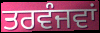
ਤਰਵੰਜਵਾਂ